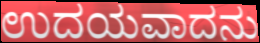
ಉದಯವಾದನು